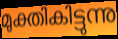
മുക്തികിട്ടുന്നു